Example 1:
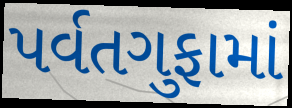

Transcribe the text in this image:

પર્વતગુફામાં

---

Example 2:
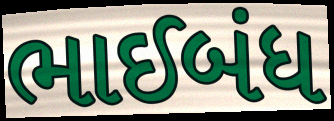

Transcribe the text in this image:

ભાઈબંધ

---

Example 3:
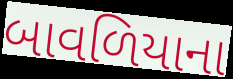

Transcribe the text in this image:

બાવળિયાના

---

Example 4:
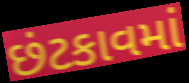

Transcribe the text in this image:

છંટકાવમાં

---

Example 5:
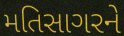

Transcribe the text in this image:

મતિસાગરને